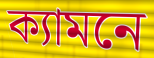
ক্যামনে